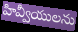
హివ్వీయులను